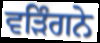
ਵੜਿੰਗਨੇ